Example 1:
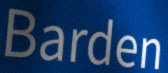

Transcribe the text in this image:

Barden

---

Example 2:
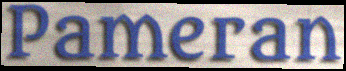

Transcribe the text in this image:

Pameran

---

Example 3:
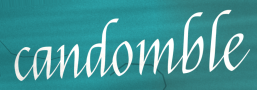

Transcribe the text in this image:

candomble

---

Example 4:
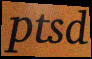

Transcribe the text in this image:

ptsd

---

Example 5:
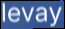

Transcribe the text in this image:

levay